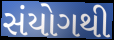
સંયોગથી